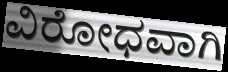
ವಿರೋಧವಾಗಿ